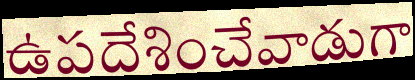
ఉపదేశించేవాడుగా